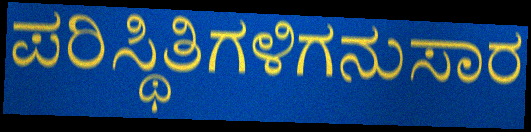
ಪರಿಸ್ಥಿತಿಗಳಿಗನುಸಾರ